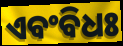
ଏବଂବିଧଃ